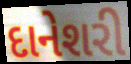
દાનેશરી